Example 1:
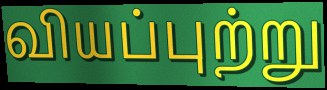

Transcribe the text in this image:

வியப்புற்று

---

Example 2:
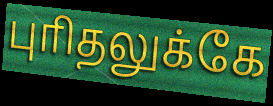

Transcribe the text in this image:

புரிதலுக்கே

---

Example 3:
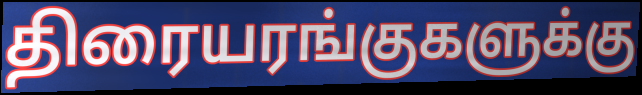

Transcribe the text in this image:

திரையரங்குகளுக்கு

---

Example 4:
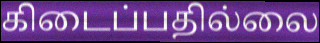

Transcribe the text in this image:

கிடைப்பதில்லை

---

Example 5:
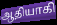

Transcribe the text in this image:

ஆதியாகி